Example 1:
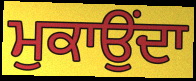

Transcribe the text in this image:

ਮੁਕਾਉਂਦਾ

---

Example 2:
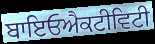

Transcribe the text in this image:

ਬਾਇਓਐਕਟੀਵਿਟੀ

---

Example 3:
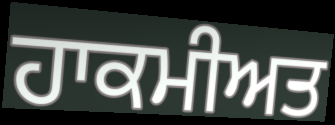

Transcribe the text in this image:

ਹਾਕਮੀਅਤ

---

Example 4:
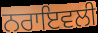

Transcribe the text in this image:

ਨਰਾਇਵਲੀ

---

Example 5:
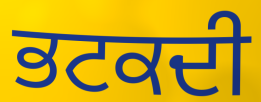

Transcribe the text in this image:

ਭਟਕਦੀ